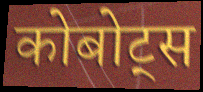
कोबोट्स